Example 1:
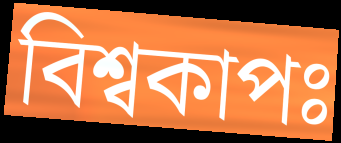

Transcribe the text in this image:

বিশ্বকাপঃ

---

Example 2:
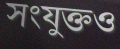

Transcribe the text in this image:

সংযুক্তও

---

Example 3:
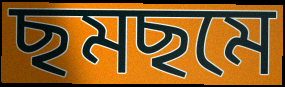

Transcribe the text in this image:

ছমছমে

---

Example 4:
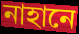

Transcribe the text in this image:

নাহানে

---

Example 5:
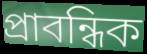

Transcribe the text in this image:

প্রাবন্ধিক